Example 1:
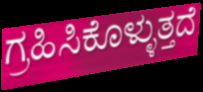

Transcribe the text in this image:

ಗ್ರಹಿಸಿಕೊಳ್ಳುತ್ತದೆ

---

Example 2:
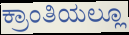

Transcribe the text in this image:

ಕ್ರಾಂತಿಯಲ್ಲೂ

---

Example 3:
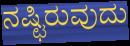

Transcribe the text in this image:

ನಷ್ಟಿರುವುದು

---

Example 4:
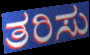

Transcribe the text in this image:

ತರಿಸು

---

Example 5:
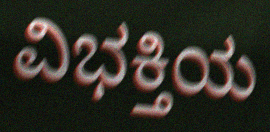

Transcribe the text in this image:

ವಿಭಕ್ತಿಯ